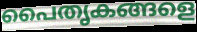
പൈതൃകങ്ങളെ